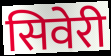
सिवेरी